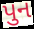
પુન